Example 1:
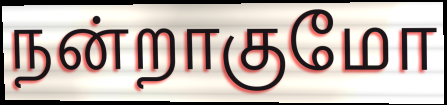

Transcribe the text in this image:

நன்றாகுமோ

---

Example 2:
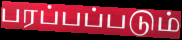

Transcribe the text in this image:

பரப்பப்படும்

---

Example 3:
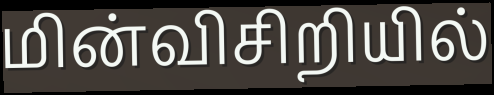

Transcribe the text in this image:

மின்விசிறியில்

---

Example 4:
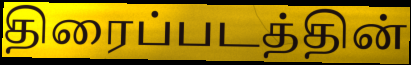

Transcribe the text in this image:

திரைப்படத்தின்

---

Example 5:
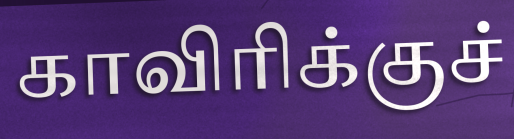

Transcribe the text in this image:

காவிரிக்குச்